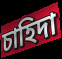
চাহিদা